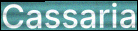
Cassaria